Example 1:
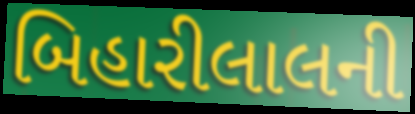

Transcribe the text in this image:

બિહારીલાલની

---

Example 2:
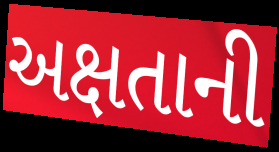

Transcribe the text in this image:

અક્ષતાની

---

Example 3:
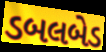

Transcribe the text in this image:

ડબલબેડ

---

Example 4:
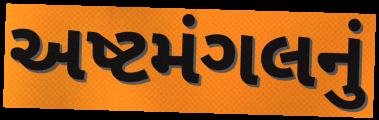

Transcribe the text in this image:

અષ્ટમંગલનું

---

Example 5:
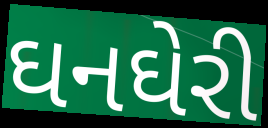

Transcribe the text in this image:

ઘનઘેરી